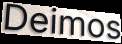
Deimos